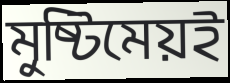
মুষ্টিমেয়ই